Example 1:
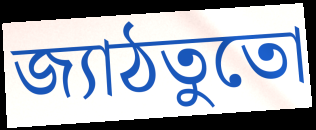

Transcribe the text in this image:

জ্যাঠতুতো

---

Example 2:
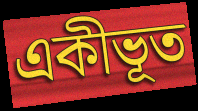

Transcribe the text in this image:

একীভূত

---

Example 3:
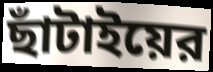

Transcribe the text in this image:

ছাঁটাইয়ের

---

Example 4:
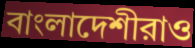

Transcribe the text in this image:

বাংলাদেশীরাও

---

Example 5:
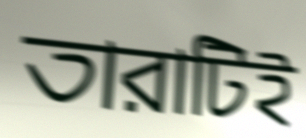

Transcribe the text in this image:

তারাটিই